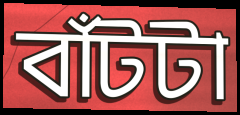
বাঁটটা